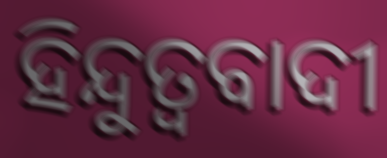
ହିନ୍ଦୁତ୍ବବାଦୀ